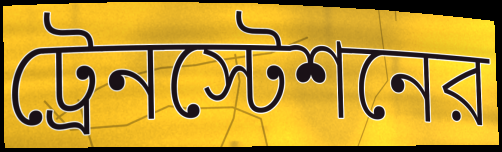
ট্রেনস্টেশনের